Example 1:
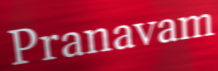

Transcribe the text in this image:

Pranavam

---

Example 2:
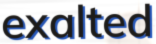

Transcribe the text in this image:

exalted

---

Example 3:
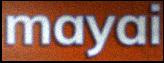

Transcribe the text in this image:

mayai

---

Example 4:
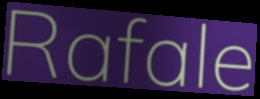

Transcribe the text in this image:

Rafale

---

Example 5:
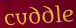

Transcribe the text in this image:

cuddle